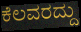
ಕೆಲವರದ್ದು